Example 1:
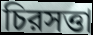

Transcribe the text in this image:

চিরসত্তা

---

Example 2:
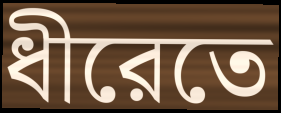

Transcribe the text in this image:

ধীরেতে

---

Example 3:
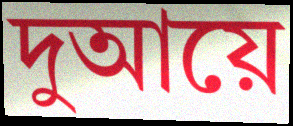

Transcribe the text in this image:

দুআয়ে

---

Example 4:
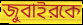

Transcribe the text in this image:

জুবাইরকে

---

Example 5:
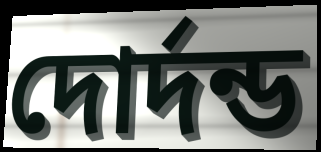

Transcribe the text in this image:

দোর্দন্ড